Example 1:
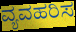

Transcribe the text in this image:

ವ್ಯವಹರಿಸ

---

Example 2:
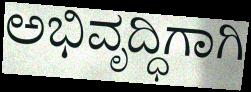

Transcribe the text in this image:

ಅಭಿವೃದ್ಧಿಗಾಗಿ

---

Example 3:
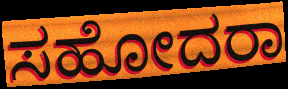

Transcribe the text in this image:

ಸಹೋದರಾ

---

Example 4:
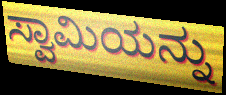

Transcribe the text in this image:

ಸ್ವಾಮಿಯನ್ನು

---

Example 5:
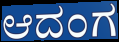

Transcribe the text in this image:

ಆದಂಗ